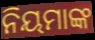
ନିୟମାଙ୍କ